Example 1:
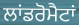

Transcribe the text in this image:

ਲਾਂਡਰੋਮੈਟਾਂ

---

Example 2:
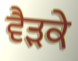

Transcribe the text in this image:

ਵੈੜਕੇ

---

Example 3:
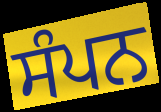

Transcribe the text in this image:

ਸੰਪਨ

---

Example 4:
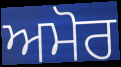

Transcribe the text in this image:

ਅਮੋਰ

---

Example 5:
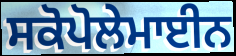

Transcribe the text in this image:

ਸਕੋਪੋਲੇਮਾਈਨ